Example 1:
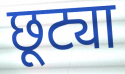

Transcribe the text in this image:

छूट्या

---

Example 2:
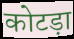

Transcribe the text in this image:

कोटड़ा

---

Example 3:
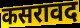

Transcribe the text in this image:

कसरावद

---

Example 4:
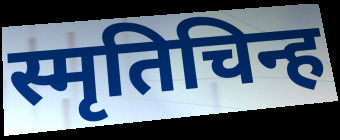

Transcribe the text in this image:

स्मृतिचिन्ह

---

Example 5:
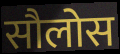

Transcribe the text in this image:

सौलोस